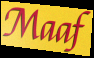
Maaf